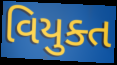
વિયુક્ત